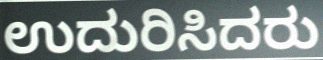
ಉದುರಿಸಿದರು